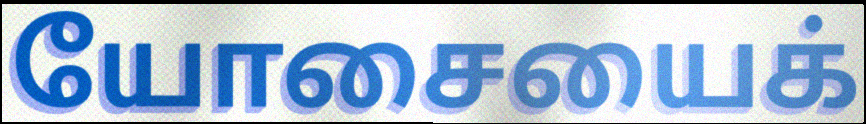
யோசையைக்